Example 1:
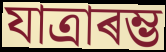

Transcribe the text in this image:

যাত্ৰাৰম্ভ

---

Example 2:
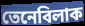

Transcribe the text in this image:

তেনেবিলাক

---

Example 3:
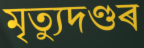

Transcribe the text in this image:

মৃত্যুদণ্ডৰ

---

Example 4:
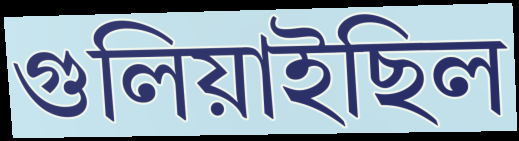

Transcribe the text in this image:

গুলিয়াইছিল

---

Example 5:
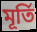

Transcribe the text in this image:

মূৰ্তি